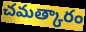
చమత్కారం